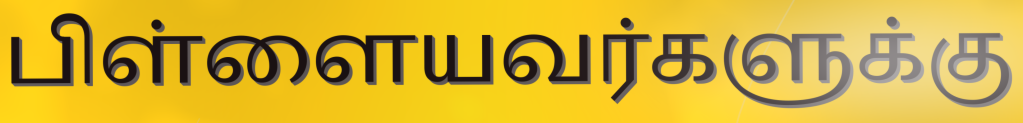
பிள்ளையவர்களுக்கு